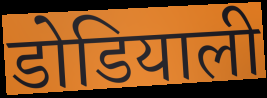
डोडियाली